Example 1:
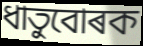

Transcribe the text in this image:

ধাতুবোৰক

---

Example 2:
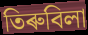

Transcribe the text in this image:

তিৰুবিলা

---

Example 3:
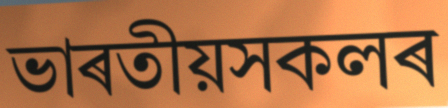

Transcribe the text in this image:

ভাৰতীয়সকলৰ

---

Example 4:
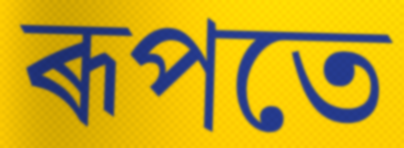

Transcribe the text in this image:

ৰূপতে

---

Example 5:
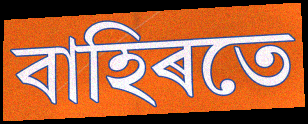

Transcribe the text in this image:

বাহিৰতে